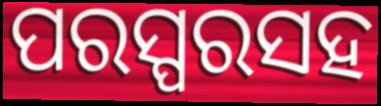
ପରସ୍ପରସହ